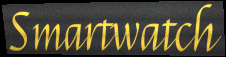
Smartwatch